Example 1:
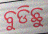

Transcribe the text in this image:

ବୁଡିଛୁ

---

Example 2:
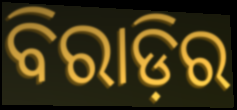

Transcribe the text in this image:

ବିରାଡ଼ିର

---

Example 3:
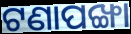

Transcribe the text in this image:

ଟଣାପଙ୍ଖା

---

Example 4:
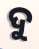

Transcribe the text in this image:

ଦୁ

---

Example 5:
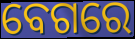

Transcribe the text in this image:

ବେଗରେ